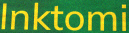
Inktomi